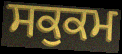
ਸਕੁਕਮ